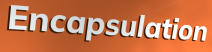
Encapsulation